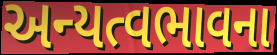
અન્યત્વભાવના